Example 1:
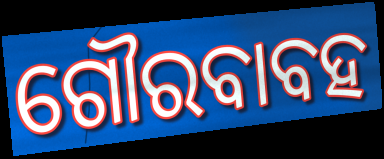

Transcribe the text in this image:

ଗୌରବାବହ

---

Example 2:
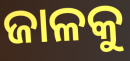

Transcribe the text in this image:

ଜାଳକୁ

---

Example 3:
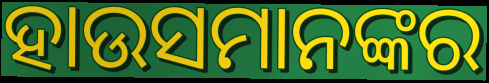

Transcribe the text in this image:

ହାଉସମାନଙ୍କର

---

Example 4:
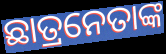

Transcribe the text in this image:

ଛାତ୍ରନେତାଙ୍କ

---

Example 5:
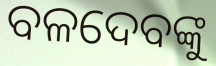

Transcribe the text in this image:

ବଳଦେବଙ୍କୁ